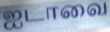
ஐடாவை